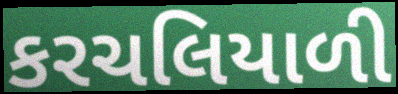
કરચલિયાળી